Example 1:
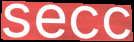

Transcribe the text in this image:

secc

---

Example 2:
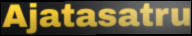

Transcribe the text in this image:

Ajatasatru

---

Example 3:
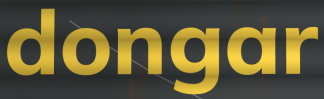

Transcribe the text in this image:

dongar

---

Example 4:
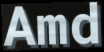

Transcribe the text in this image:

Amd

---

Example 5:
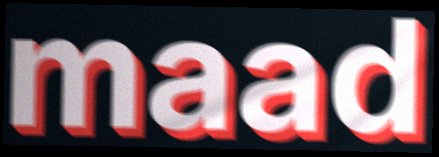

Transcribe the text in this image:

maad